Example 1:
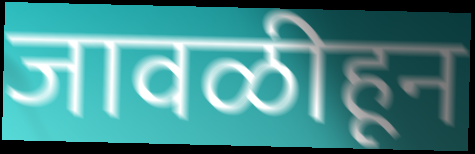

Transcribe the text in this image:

जावळीहून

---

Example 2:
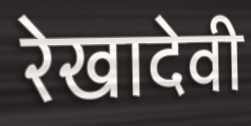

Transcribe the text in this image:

रेखादेवी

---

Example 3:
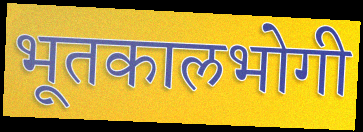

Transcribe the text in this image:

भूतकालभोगी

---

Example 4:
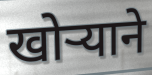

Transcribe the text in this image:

खोऱ्याने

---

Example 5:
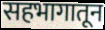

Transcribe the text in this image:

सहभागातून